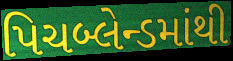
પિચબ્લેન્ડમાંથી